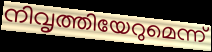
നിവൃത്തിയേറുമെന്ന്